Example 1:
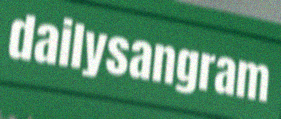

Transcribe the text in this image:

dailysangram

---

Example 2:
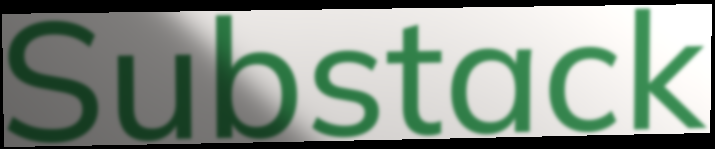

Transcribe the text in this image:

Substack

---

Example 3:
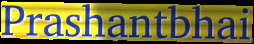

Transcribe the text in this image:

Prashantbhai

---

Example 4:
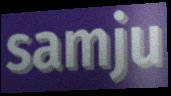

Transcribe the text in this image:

samju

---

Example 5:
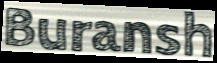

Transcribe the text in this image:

Buransh